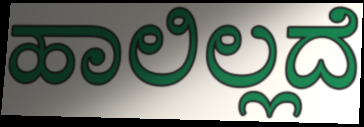
ಹಾಲಿಲ್ಲದೆ